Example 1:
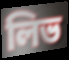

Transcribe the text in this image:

লিভ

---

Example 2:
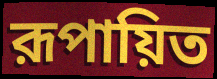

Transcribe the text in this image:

রূপায়িত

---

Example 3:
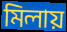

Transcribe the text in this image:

মিলায়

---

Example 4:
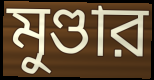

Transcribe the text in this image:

মুণ্ডার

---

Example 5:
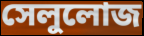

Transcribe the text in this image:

সেলুলোজ